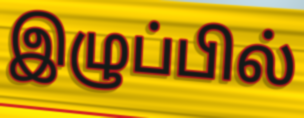
இழுப்பில்